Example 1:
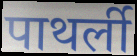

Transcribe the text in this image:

पाथर्ली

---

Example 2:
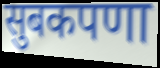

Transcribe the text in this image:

सुबकपणा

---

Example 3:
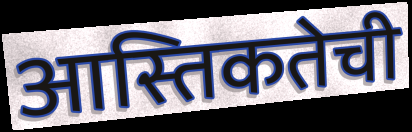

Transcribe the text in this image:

आस्तिकतेची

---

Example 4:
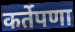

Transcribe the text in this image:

कर्तेपणा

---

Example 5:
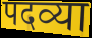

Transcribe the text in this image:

पदव्या